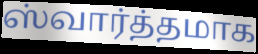
ஸ்வார்த்தமாக